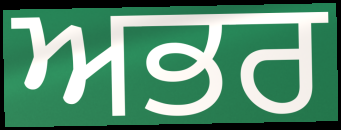
ਅਭਰ